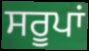
ਸਰੂਪਾਂ